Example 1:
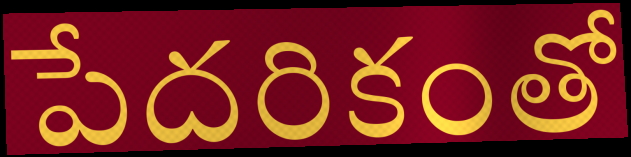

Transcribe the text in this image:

పేదరికంతో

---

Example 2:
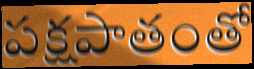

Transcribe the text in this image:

పక్షపాతంతో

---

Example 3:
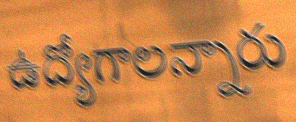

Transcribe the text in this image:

ఉద్యోగాలన్నారు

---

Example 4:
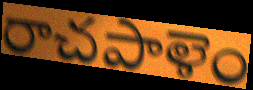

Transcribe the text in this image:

రాచపాళెం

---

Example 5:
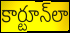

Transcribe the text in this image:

కార్టూన్‌లా